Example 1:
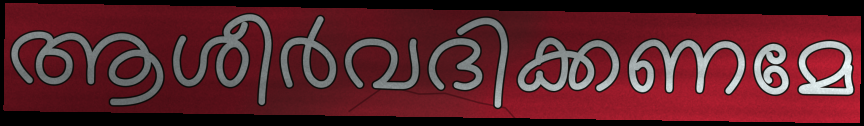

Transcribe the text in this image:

ആശീർവദിക്കണമേ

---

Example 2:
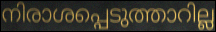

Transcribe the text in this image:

നിരാശപ്പെടുത്താറില്ല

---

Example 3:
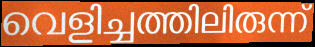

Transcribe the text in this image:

വെളിച്ചത്തിലിരുന്ന്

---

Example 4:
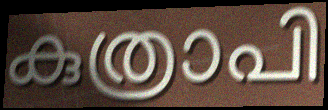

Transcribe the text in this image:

കുത്രാപി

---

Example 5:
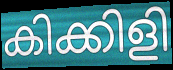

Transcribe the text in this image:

കിക്കിളി